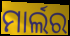
ମାର୍ଲର